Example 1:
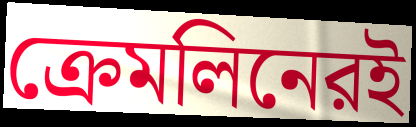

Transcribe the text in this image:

ক্রেমলিনেরই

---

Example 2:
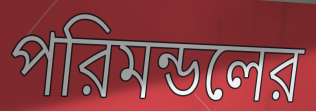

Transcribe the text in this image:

পরিমন্ডলের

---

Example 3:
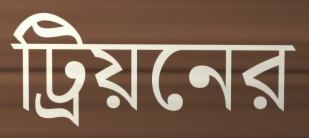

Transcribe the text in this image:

ট্রিয়নের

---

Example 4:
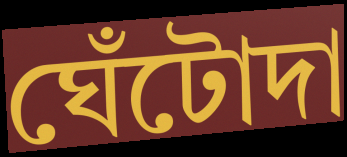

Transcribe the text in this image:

ঘেঁটোদা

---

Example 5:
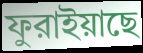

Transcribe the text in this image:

ফুরাইয়াছে